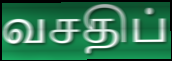
வசதிப்